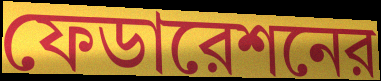
ফেডারেশনের